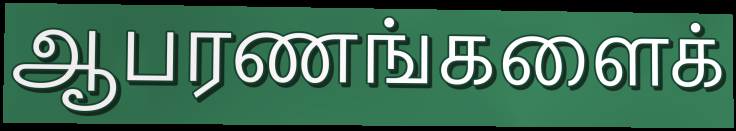
ஆபரணங்களைக்